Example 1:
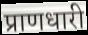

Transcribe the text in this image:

प्राणधारी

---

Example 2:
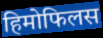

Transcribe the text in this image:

हिमोफिलस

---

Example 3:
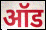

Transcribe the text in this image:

ऑड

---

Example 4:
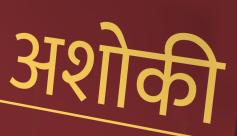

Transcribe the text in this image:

अशोकी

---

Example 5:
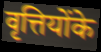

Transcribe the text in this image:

वृत्तियोंके